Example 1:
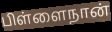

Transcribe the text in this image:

பிள்ளைநான்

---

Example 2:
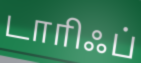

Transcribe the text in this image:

டாரிஃப்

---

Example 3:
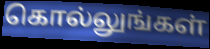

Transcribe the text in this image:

கொல்லுங்கள்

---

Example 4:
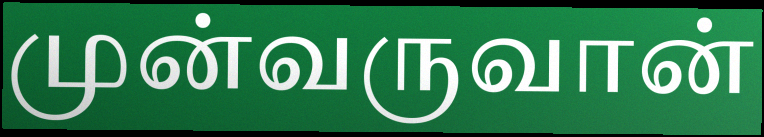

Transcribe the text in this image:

முன்வருவான்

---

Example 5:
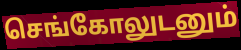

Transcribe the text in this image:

செங்கோலுடனும்